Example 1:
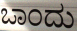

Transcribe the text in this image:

ಒಾಂದು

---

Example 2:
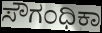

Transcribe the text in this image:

ಸೌಗಂಧಿಕಾ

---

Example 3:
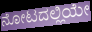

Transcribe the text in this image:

ನೋಟದಲ್ಲಿಯೇ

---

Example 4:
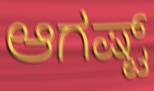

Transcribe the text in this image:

ಆಗಷ್ಟ್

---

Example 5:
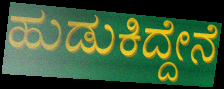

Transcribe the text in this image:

ಹುಡುಕಿದ್ದೇನೆ